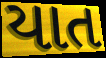
યાત